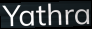
Yathra